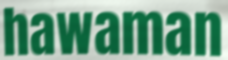
hawaman